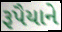
રૂપૈયાને